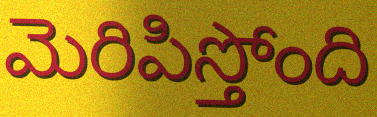
మెరిపిస్తోంది